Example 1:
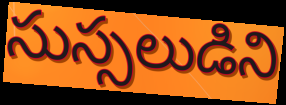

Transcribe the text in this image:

సుస్సలుడిని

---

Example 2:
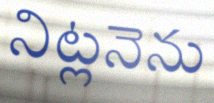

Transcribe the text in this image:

నిట్లనెను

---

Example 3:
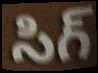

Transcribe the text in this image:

సిగ్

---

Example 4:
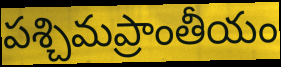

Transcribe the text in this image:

పశ్చిమప్రాంతీయం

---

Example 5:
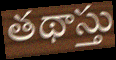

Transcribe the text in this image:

తథాస్తు